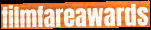
filmfareawards